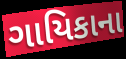
ગાયિકાના